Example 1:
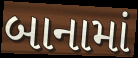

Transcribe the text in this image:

બાનામાં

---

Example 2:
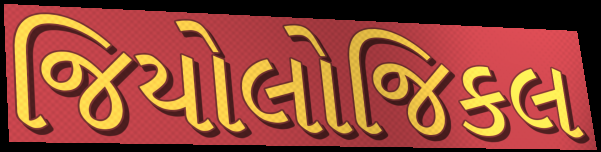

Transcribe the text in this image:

જિયોલોજિકલ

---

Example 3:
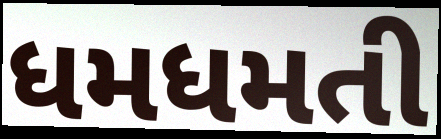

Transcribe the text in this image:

ધમધમતી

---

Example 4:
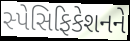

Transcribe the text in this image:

સ્પેસિફિકેશનને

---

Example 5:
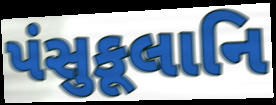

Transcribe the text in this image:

પંસુકૂલાનિ